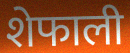
शेफाली